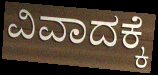
ವಿವಾದಕ್ಕೆ